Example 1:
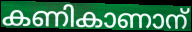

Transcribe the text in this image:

കണികാണാന്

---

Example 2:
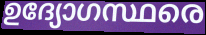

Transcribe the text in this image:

ഉദ്യോഗസ്ഥരെ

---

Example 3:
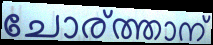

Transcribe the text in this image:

ചോര്ത്താന്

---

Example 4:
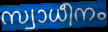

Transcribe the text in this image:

സ്വാധീനം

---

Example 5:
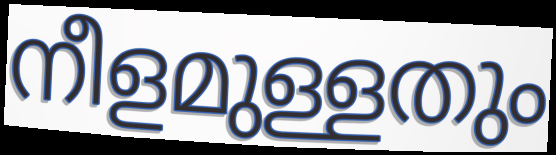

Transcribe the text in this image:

നീളമുള്ളതും